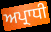
ਅਪ੍ਰਾਧੀ